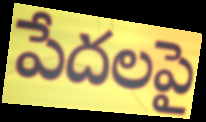
పేదలపై